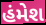
હંમેશ